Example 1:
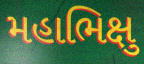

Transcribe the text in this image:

મહાભિક્ષુ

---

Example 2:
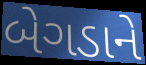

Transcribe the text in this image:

બેગડાને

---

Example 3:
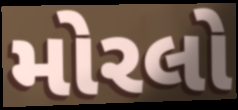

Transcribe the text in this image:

મોરલો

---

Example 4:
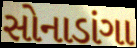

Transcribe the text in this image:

સોનાડાંગા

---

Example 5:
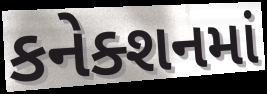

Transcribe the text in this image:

કનેક્શનમાં